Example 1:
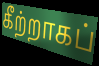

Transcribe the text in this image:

கீற்றாகப்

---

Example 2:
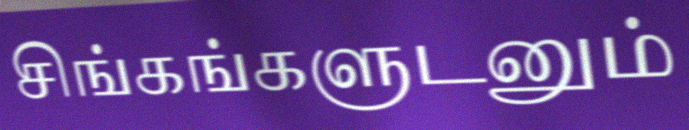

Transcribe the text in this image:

சிங்கங்களுடனும்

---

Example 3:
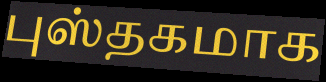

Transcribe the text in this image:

புஸ்தகமாக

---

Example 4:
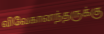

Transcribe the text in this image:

விவேகானந்தருக்கு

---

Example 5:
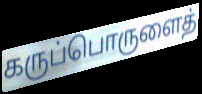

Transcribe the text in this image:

கருப்பொருளைத்